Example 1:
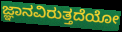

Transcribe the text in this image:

ಜ್ಞಾನವಿರುತ್ತದೆಯೋ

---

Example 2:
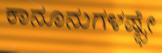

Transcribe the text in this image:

ಕಾನೂನುಗಳಷ್ಟೇ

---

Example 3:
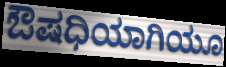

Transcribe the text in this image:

ಔಷಧಿಯಾಗಿಯೂ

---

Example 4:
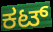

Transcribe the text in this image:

ಕಟ್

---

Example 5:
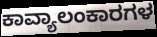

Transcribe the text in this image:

ಕಾವ್ಯಾಲಂಕಾರಗಳ